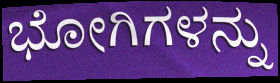
ಭೋಗಿಗಳನ್ನು